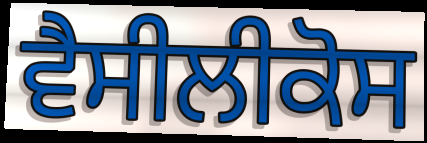
ਵੈਸੀਲੀਕੋਸ